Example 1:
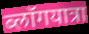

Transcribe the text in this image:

ब्लॉगयात्रा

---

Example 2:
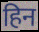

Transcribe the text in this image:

हिन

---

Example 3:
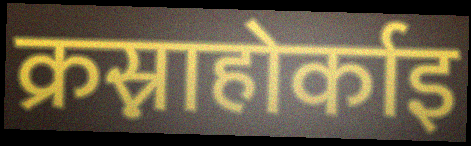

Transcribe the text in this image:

क्रस्नाहोर्काइ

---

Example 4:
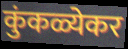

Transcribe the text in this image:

कुंकळ्येकर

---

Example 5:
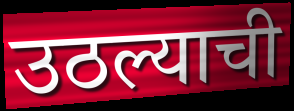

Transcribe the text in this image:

उठल्याची